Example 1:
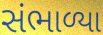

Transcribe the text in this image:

સંભાળ્યા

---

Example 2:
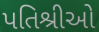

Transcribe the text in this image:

પતિશ્રીઓ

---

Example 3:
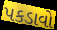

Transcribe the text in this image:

પકડાવો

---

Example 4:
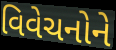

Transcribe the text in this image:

વિવેચનોને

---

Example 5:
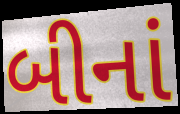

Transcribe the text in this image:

બીનાં